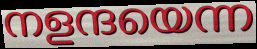
നളന്ദയെന്ന